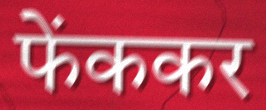
फेंककर